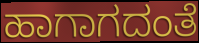
ಹಾಗಾಗದಂತೆ